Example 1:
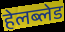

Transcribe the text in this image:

हेलब्लेड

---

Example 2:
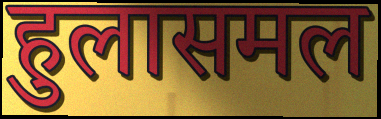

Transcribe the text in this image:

हुलासमल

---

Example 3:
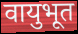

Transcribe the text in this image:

वायुभूत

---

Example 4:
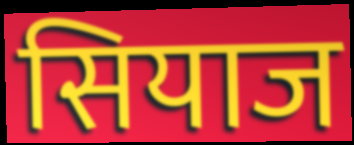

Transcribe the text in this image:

सियाज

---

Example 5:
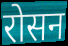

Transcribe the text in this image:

रोसन